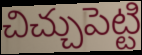
చిచ్చుపెట్టి